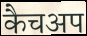
कैचअप